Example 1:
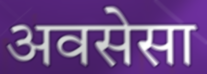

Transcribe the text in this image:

अवसेसा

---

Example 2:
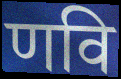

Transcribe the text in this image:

णवि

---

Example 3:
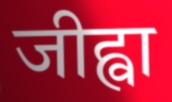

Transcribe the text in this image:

जीह्वा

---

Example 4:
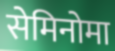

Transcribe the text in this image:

सेमिनोमा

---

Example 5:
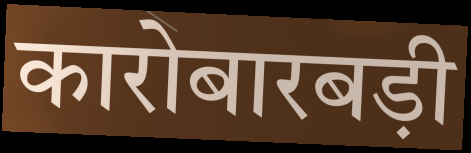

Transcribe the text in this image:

कारोबारबड़ी